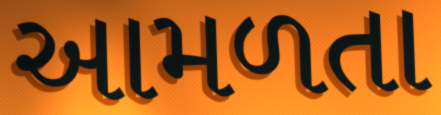
આમળતા